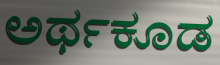
ಅರ್ಥಕೂಡ